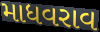
માધવરાવ